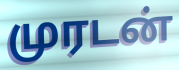
முரடன்